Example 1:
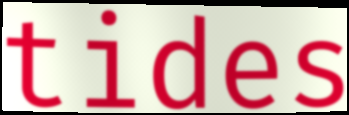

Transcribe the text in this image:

tides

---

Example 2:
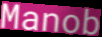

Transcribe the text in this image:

Manob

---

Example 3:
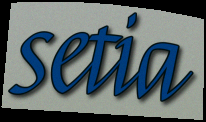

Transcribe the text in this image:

setia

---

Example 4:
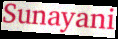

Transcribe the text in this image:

Sunayani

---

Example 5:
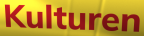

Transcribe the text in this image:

Kulturen